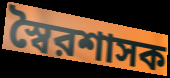
স্বৈরশাসক